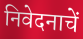
निवेदनाचें